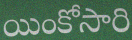
యింకోసారి